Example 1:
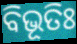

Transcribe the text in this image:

ବିଭୂତିଃ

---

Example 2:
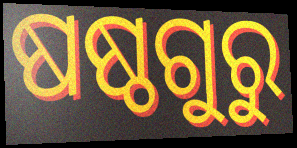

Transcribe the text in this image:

ଷଷ୍ଠଗୁରୁ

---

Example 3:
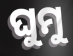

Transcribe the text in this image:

ଘୁମୁ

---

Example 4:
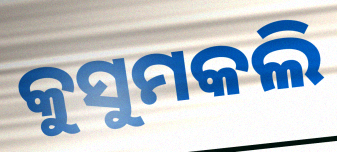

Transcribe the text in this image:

କୁସୁମକଲି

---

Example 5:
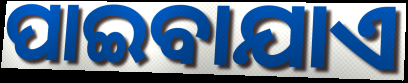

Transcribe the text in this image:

ପାଇବାଯାଏ